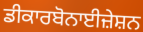
ਡੀਕਾਰਬੋਨਾਈਜ਼ੇਸ਼ਨ